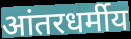
आंतरधर्मीय